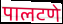
पालटणे